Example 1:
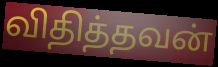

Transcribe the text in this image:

விதித்தவன்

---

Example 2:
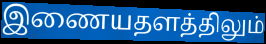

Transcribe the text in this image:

இணையதளத்திலும்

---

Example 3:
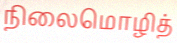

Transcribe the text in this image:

நிலைமொழித்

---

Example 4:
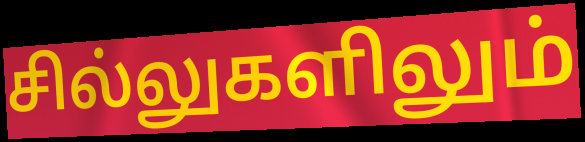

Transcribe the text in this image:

சில்லுகளிலும்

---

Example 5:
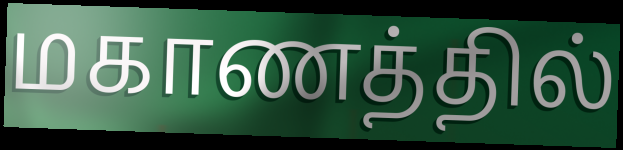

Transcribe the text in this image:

மகாணத்தில்